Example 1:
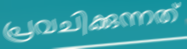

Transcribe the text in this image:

പ്രവചിക്കുന്നത്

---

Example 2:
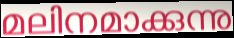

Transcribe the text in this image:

മലിനമാക്കുന്നു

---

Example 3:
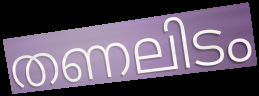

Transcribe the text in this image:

തണലിടം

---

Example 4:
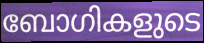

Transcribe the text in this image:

ബോഗികളുടെ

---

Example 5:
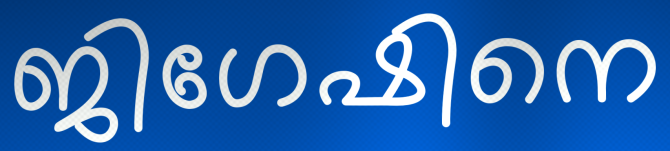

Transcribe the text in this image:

ജിഗേഷിനെ